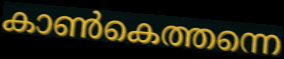
കാൺകെത്തന്നെ